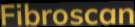
Fibroscan